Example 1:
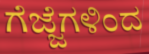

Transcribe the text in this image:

ಗೆಜ್ಜೆಗಳಿಂದ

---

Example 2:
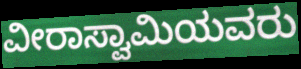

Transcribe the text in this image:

ವೀರಾಸ್ವಾಮಿಯವರು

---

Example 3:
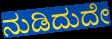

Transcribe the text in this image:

ನುಡಿದುದೇ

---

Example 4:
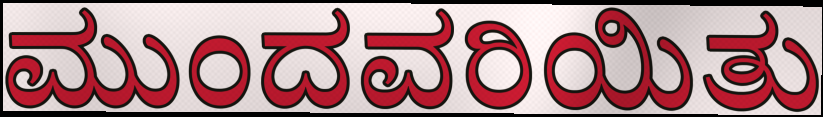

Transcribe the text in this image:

ಮುಂದವರಿಯಿತು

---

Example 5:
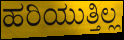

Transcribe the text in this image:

ಹರಿಯುತ್ತಿಲ್ಲ